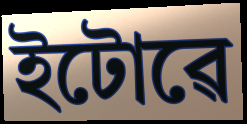
ইটোৱে